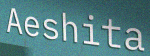
Aeshita